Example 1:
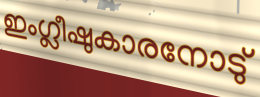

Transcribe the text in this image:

ഇംഗ്ലീഷുകാരനോടു്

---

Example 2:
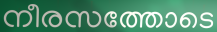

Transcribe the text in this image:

നീരസത്തോടെ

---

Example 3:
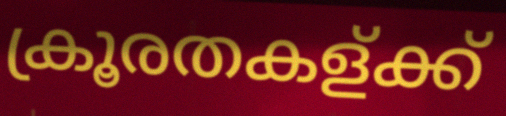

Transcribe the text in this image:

ക്രൂരതകള്ക്ക്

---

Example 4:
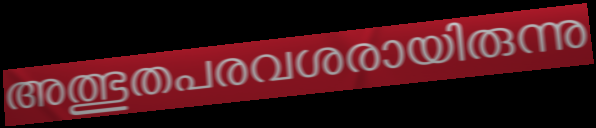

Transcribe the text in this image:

അത്ഭുതപരവശരായിരുന്നു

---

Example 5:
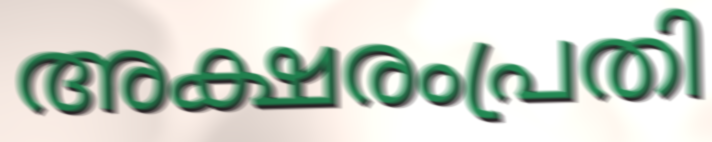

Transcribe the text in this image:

അക്ഷരംപ്രതി